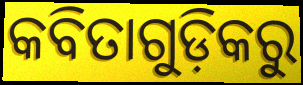
କବିତାଗୁଡ଼ିକରୁ